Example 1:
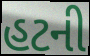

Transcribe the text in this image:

હટની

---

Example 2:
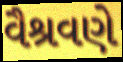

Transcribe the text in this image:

વૈશ્રવણે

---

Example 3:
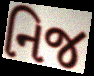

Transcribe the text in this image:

નિજ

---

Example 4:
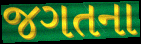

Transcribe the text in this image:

જગતના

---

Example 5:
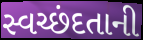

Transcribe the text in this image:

સ્વચ્છંદતાની